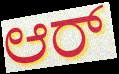
ಆರ್